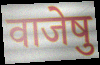
वाजेषु